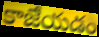
కాజేయడం